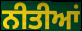
ਨੀਤੀਆਂ